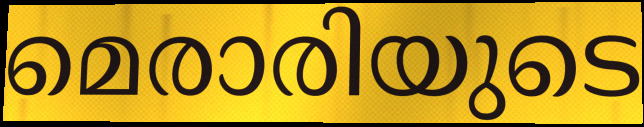
മെരാരിയുടെ